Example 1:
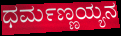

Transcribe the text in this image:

ಧರ್ಮಣ್ಣಯ್ಯನ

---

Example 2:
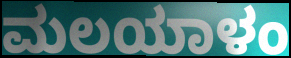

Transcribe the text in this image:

ಮಲಯಾಳಂ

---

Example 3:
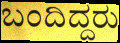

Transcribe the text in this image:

ಬಂದಿದ್ದರು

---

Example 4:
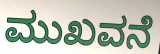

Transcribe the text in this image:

ಮುಖವನೆ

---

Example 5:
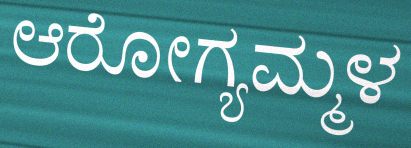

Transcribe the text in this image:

ಆರೋಗ್ಯಮ್ಮಳ